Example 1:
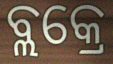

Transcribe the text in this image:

ବ୍ଲକ୍ରେ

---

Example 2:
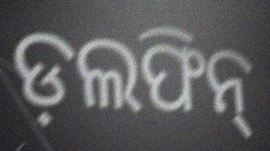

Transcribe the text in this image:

ଡ଼ଲଫିନ୍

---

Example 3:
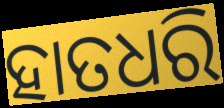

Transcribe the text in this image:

ହାତଧରି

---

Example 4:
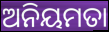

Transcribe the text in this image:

ଅନିୟମତା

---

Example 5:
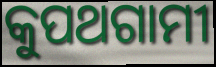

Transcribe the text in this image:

କୁପଥଗାମୀ